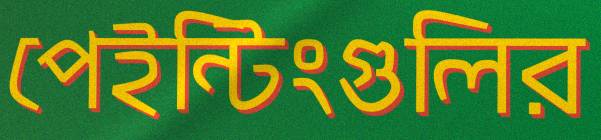
পেইন্টিংগুলির